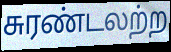
சுரண்டலற்ற